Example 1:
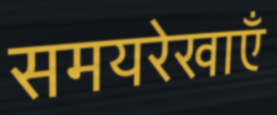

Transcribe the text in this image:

समयरेखाएँ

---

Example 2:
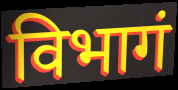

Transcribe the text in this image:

विभागं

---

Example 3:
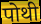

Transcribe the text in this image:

पोथी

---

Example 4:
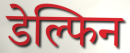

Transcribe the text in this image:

डेल्फिन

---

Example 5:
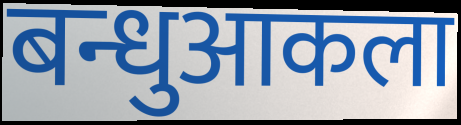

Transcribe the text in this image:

बन्धुआकला